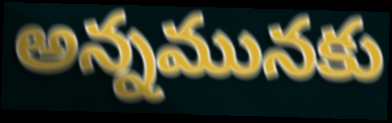
అన్నమునకు